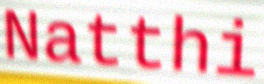
Natthi